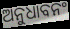
ଅନୁଧାବନଂ